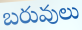
బరువులు